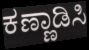
ಕಣ್ಣಾಡಿಸಿ